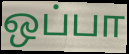
ஒப்பா